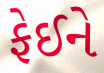
ફેઈને